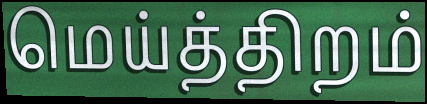
மெய்த்திறம்